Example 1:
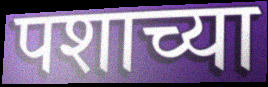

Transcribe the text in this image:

पशाच्या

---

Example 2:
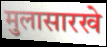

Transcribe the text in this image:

मुलासारखे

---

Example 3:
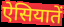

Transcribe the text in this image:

ऐसियातें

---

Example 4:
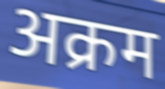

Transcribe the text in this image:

अक्रम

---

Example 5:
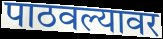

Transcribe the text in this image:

पाठवल्यावर